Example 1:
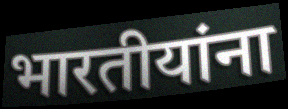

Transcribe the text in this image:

भारतीयांना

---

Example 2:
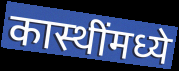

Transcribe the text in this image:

कास्थींमध्ये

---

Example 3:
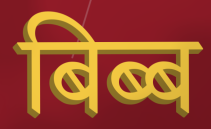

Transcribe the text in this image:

बिब्ब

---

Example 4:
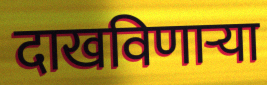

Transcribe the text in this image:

दाखविणाऱ्या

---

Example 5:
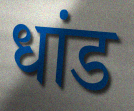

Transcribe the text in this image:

धांड